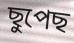
ছুপেছ